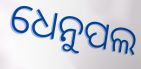
ଧେନୁପଲ